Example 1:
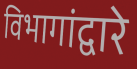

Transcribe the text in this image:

विभागांद्वारे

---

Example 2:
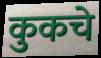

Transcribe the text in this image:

कुकचे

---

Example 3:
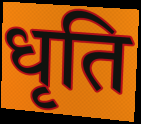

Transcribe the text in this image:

धृति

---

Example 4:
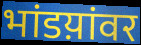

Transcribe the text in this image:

भांडय़ांवर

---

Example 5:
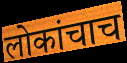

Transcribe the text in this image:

लोकांचाच